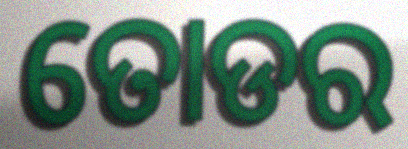
ତୋଡର